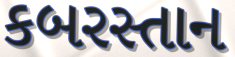
કબરસ્તાન